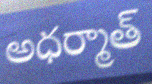
అధర్మాత్